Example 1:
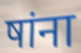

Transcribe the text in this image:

षांना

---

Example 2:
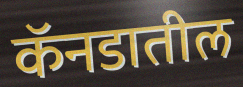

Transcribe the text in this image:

कॅनडातील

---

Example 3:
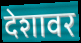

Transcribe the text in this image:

देशावर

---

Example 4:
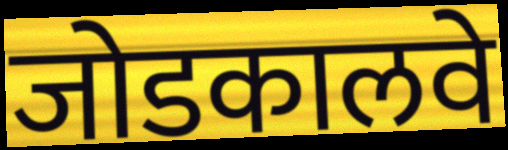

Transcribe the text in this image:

जोडकालवे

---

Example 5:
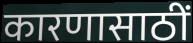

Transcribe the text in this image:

कारणासाठीं